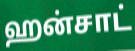
ஹன்சாட்